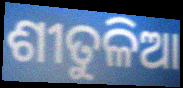
ଶୀତୁଳିଆ